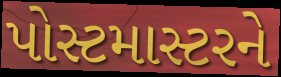
પોસ્ટમાસ્ટરને